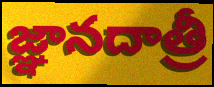
జ్ఞానదాత్రీ